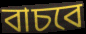
বাচবে